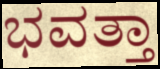
ಭವತ್ತಾ